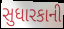
સુધારકાની